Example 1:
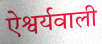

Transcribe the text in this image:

ऐश्वर्यवाली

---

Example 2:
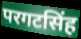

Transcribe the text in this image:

परगटसिंह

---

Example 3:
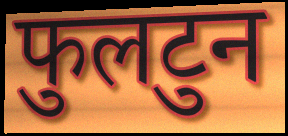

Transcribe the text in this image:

फुलटुन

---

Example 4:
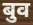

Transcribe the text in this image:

बुव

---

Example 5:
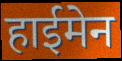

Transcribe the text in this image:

हाईमेन